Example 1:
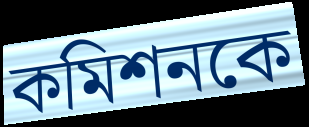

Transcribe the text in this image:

কমিশনকে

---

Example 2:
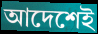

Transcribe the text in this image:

আদেশেই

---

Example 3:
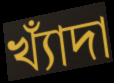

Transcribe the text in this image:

খ্যাঁদা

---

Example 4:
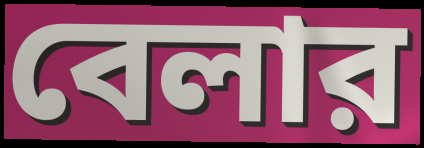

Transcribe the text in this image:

বেলার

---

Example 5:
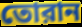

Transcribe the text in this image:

তোরান